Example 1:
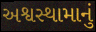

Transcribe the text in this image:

અશ્વસ્થામાનું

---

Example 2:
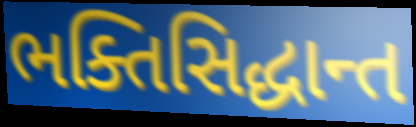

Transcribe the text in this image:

ભક્તિસિદ્ધાન્ત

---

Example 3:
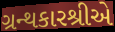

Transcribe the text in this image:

ગ્રન્થકારશ્રીએ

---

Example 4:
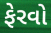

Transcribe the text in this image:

ફેરવો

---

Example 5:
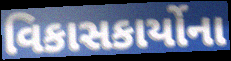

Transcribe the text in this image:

વિકાસકાર્યોના